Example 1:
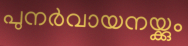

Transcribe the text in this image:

പുനർവായനയ്ക്കും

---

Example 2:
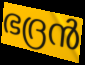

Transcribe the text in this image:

ഭദ്രൻ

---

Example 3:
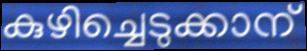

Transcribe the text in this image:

കുഴിച്ചെടുക്കാന്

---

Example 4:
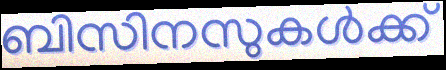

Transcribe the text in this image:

ബിസിനസുകൾക്ക്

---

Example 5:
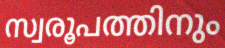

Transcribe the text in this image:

സ്വരൂപത്തിനും